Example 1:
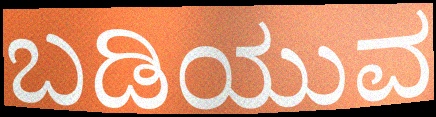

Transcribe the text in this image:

ಬಡಿಯುವ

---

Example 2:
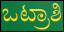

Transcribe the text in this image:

ಒಟ್ರಾಶಿ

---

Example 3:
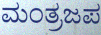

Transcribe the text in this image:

ಮಂತ್ರಜಪ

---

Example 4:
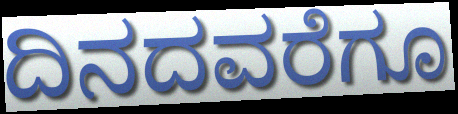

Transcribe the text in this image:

ದಿನದವರೆಗೂ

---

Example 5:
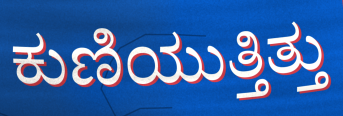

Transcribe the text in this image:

ಕುಣಿಯುತ್ತಿತ್ತು